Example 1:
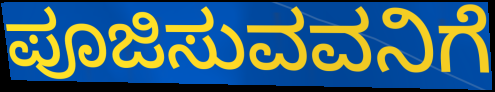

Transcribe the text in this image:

ಪೂಜಿಸುವವನಿಗೆ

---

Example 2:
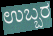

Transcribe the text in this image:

ಉಬ್ಬರ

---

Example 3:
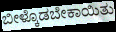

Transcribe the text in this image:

ಬೀಳ್ಕೊಡಬೇಕಾಯಿತು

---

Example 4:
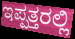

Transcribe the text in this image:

ಇಪ್ಪತ್ತರಲ್ಲಿ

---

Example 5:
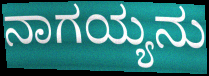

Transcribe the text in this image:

ನಾಗಯ್ಯನು